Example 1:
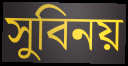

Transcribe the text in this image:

সুবিনয়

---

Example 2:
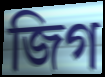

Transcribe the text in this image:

জিগ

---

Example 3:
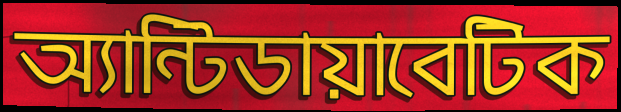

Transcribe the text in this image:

অ্যান্টিডায়াবেটিক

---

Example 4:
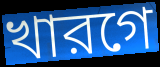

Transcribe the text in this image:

খারগে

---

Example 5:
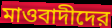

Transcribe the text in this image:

মাওবাদীদের